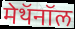
मेथॅनॉल